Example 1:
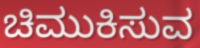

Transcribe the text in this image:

ಚಿಮುಕಿಸುವ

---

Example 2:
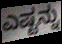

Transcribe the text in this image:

ಎಷ್ಟನ್ನು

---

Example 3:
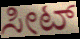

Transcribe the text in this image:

ಸೀಟ್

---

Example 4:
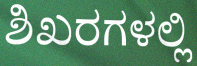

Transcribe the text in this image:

ಶಿಖರಗಳಲ್ಲಿ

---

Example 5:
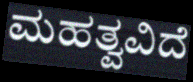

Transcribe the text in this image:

ಮಹತ್ವವಿದೆ